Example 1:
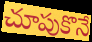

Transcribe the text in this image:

చూపుకొనే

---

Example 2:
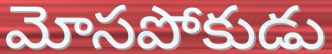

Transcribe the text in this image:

మోసపోకుడు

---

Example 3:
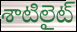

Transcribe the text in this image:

శాటిలైట్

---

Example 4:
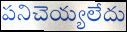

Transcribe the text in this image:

పనిచెయ్యలేదు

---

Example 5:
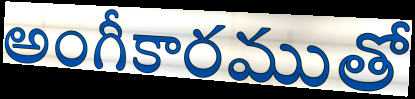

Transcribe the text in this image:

అంగీకారముతో